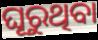
ଘୂରୁଥିବା